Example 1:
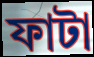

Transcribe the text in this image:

ফাটা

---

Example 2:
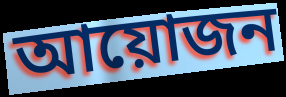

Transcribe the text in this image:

আয়োজন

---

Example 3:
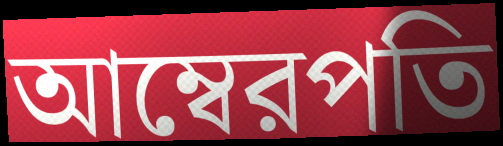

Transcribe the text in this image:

আম্বেরপতি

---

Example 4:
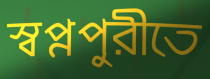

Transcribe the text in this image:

স্বপ্নপুরীতে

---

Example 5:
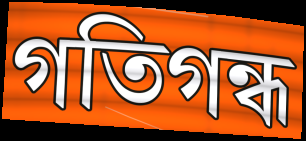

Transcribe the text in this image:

গতিগন্ধ